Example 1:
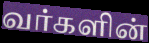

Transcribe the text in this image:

வர்களின்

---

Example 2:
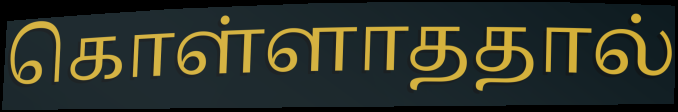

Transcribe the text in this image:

கொள்ளாததால்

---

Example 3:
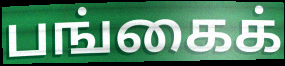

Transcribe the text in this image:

பங்கைக்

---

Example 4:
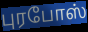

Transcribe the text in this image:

புரபோஸ்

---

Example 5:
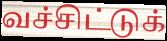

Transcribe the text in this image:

வச்சிட்டுக்